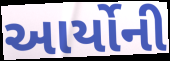
આર્યોની